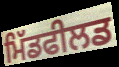
ਮਿੱਡਫੀਲਡ